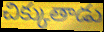
చిక్కుతాడు